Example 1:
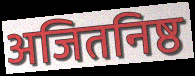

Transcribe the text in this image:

अजितनिष्ठ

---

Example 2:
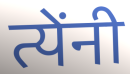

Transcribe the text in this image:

त्येंनी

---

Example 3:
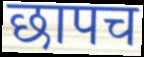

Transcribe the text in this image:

छापच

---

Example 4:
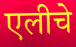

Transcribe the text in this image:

एलीचे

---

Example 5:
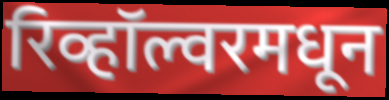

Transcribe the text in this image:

रिव्हॉल्वरमधून